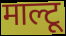
माल्टू